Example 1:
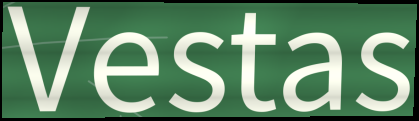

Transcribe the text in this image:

Vestas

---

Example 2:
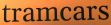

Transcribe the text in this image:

tramcars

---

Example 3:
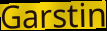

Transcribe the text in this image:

Garstin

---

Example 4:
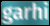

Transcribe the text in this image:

garhi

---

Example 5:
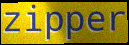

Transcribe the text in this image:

zipper